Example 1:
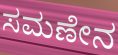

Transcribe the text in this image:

ಸಮಣೇನ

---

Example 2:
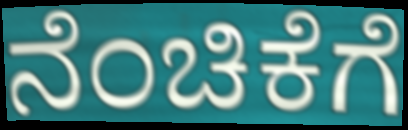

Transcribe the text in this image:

ನೆಂಚಿಕೆಗೆ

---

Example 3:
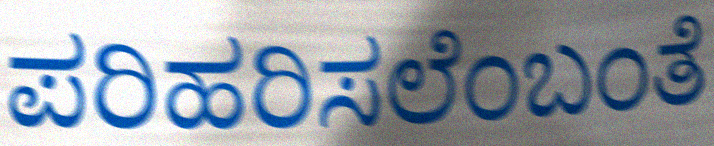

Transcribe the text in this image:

ಪರಿಹರಿಸಲೆಂಬಂತೆ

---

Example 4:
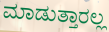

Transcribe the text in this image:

ಮಾಡುತ್ತಾರಲ್ಲ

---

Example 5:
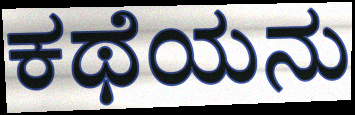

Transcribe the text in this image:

ಕಥೆಯನು